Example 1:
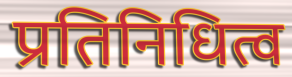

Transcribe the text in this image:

प्रतिनिधित्व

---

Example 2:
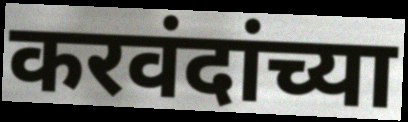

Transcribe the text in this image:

करवंदांच्या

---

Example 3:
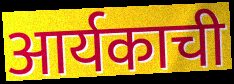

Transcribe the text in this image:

आर्यकाची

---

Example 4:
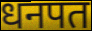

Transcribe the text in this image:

धनपत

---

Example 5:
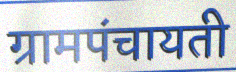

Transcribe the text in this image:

ग्रामपंचायती